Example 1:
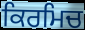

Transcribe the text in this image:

ਕਿਰਮਿਚ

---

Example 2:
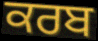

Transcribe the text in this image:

ਕਰਬ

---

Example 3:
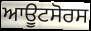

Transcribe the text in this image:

ਆਉੂਟਸੋਰਸ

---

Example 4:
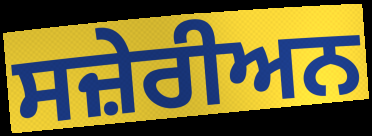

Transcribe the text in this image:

ਸਜ਼ੇਰੀਅਨ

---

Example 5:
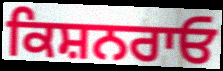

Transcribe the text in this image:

ਕਿਸ਼ਨਰਾਓ